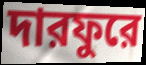
দারফুরে